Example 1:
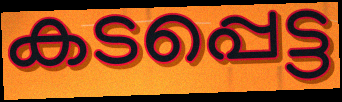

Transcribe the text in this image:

കടപ്പെട്ട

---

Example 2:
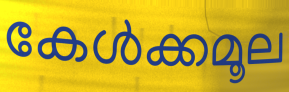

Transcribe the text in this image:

കേൾക്കമൂല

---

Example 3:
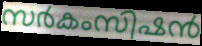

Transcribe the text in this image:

സർകംസിഷൻ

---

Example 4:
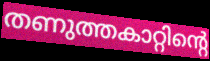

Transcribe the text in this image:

തണുത്തകാറ്റിന്റെ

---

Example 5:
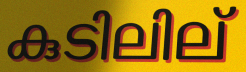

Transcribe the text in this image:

കുടിലില്